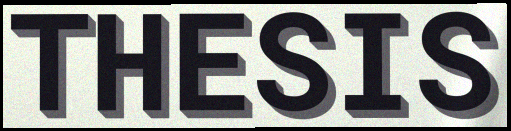
THESIS